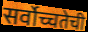
सर्वोच्चतेची